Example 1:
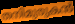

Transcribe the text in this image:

തനിമുരുകൻ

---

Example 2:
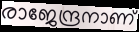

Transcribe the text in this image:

രാജേന്ദ്രനാണ്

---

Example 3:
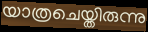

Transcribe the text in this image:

യാത്രചെയ്തിരുന്നു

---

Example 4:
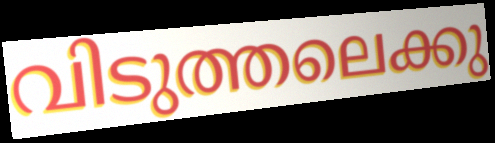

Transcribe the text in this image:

വിടുത്തലെക്കു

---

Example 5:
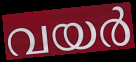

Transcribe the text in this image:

വയർ